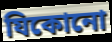
যিকোনো